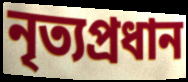
নৃত্যপ্রধান